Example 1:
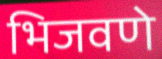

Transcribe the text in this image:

भिजवणे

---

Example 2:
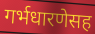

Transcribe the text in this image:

गर्भधारणेसह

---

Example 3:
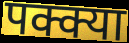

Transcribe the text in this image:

पक्क्या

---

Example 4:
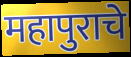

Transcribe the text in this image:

महापुराचे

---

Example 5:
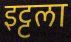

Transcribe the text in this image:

इट्टला